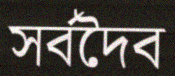
সর্বদৈব